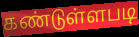
கண்டுள்ளபடி